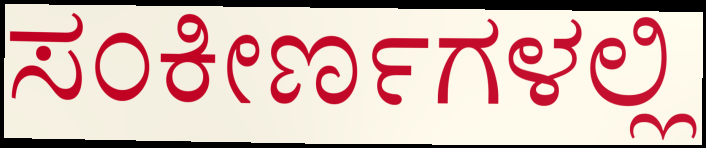
ಸಂಕೀರ್ಣಗಳಲ್ಲಿ